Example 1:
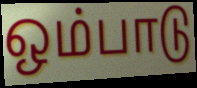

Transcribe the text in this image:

ஒம்பாடு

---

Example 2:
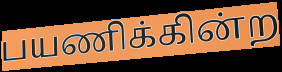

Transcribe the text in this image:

பயணிக்கின்ற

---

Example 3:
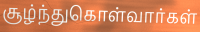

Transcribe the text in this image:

சூழ்ந்துகொள்வார்கள்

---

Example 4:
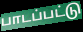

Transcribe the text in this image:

பாடப்பட்டு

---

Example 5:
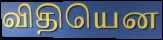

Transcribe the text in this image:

விதியென